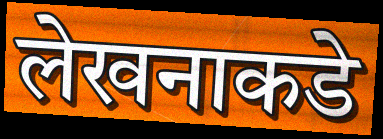
लेखनाकडे